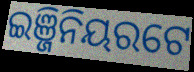
ଇଞ୍ଜିନିୟରଟେ